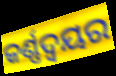
କର୍ଣ୍ଣଦ୍ୱୟର